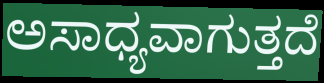
ಅಸಾಧ್ಯವಾಗುತ್ತದೆ